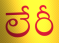
లేరీ